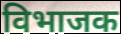
विभाजक